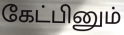
கேட்பினும்